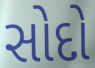
સોદો